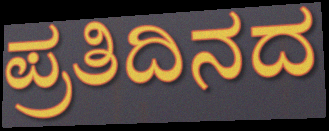
ಪ್ರತಿದಿನದ